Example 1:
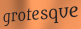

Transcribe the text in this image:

grotesque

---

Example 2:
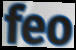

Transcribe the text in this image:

feo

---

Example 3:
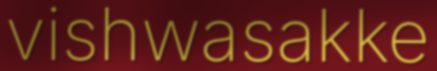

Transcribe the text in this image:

vishwasakke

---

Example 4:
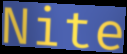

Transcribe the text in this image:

Nite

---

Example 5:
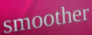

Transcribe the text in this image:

smoother